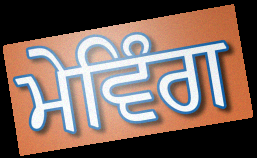
ਮੇਵਿੰਗ